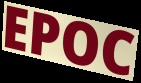
EPOC